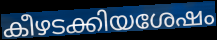
കീഴടക്കിയശേഷം